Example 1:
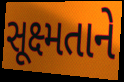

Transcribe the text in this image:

સૂક્ષ્મતાને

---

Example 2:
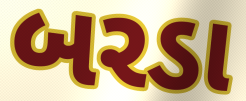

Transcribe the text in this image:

બરડા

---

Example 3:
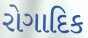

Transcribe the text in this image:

રોગાદિક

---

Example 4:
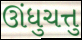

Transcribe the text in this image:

ઊંધુચત્તુ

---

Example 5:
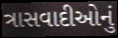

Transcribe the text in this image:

ત્રાસવાદીઓનું